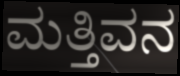
ಮತ್ತಿವನ